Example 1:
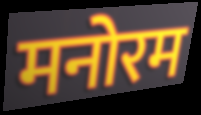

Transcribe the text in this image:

मनोरम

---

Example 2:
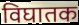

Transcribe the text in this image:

विघातक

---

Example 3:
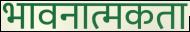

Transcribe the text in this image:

भावनात्मकता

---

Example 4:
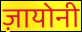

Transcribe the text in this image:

ज़ायोनी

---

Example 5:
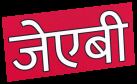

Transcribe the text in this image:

जेएबी